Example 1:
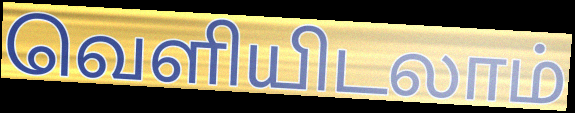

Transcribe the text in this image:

வெளியிடலாம்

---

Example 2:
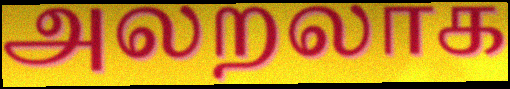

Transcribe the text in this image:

அலறலாக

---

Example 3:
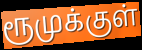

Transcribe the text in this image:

ரூமுக்குள்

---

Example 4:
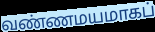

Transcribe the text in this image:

வண்ணமயமாகப்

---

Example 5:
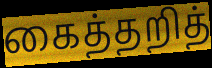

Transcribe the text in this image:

கைத்தறித்